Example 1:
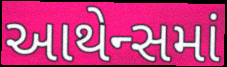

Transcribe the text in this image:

આથેન્સમાં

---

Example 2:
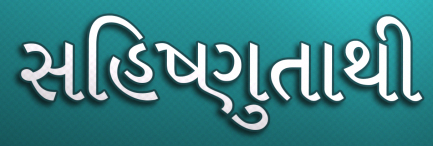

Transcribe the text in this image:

સહિષ્ણુતાથી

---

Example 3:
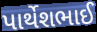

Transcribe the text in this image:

પાર્થેશભાઈ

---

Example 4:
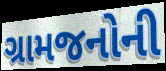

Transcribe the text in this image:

ગ્રામજનોની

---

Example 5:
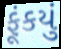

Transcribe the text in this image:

ફૂંકયું